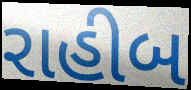
રાહીબ